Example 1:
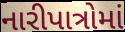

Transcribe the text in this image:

નારીપાત્રોમાં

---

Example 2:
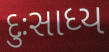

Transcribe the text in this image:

દુઃસાધ્ય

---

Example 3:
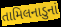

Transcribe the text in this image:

તામિલનાડુનાં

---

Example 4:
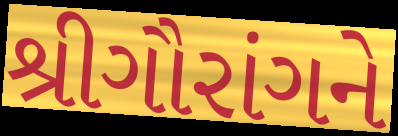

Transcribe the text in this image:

શ્રીગૌરાંગને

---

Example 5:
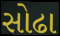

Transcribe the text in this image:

સોઢા